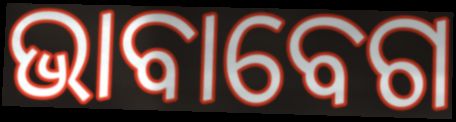
ଭାବାବେଗ